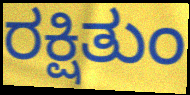
ರಕ್ಷಿತುಂ